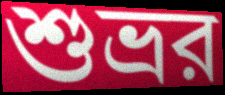
শুভ্রর